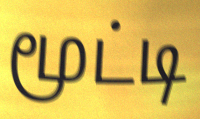
மூட்டி